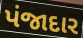
પંજાદાર